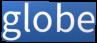
globe